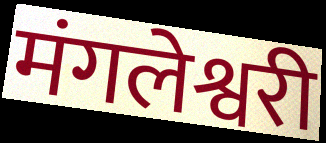
मंगलेश्वरी